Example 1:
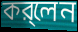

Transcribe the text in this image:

কর্‌লেন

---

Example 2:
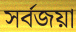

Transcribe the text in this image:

সর্বজয়া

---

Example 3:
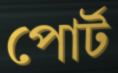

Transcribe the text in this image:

পোর্ট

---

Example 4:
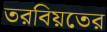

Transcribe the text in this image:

তরবিয়তের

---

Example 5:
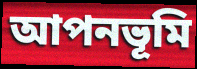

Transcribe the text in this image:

আপনভূমি